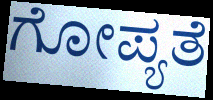
ಗೋಪ್ಯತೆ